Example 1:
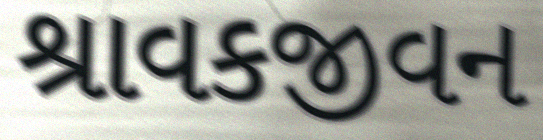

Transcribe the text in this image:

શ્રાવકજીવન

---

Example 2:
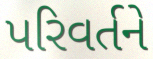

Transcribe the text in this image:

પરિવર્તને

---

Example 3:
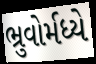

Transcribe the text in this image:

ભ્રુવોર્મધ્યે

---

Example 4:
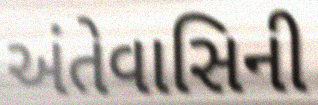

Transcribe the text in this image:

અંતેવાસિની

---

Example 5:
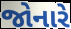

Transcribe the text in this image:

જોનારે